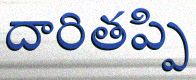
దారితప్పి